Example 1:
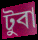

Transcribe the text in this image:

টুবা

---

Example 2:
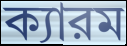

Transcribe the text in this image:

ক্যারম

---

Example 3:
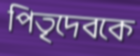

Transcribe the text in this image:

পিতৃদেবকে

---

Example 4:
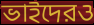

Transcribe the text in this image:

ভাইদেরও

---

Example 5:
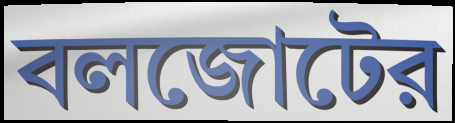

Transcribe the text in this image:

বলজোটের